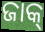
ଜାକ୍